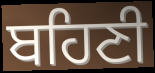
ਬਹਿਣੀ